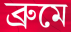
ব্রুমে